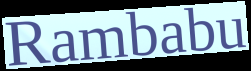
Rambabu